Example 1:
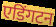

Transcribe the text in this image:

एडिंगटन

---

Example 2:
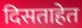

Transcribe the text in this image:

दिसताहेत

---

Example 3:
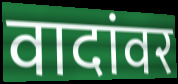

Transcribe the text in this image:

वादांवर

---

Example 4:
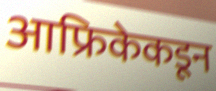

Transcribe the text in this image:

आफ्रिकेकडून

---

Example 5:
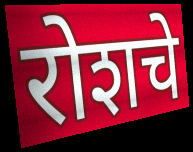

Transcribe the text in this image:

रोशचे